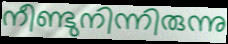
നീണ്ടുനിന്നിരുന്നു